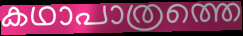
കഥാപാത്രത്തെ